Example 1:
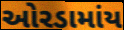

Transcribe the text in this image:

ઓરડામાંય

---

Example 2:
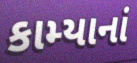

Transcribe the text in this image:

કામ્યાનાં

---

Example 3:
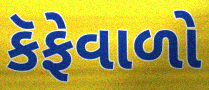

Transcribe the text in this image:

કૅફેવાળો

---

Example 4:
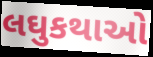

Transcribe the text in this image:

લઘુકથાઓ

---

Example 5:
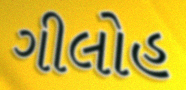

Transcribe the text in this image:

ગીલોહ